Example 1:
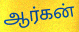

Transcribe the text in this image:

ஆர்கன்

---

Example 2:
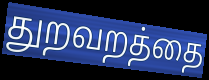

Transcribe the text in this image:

துறவறத்தை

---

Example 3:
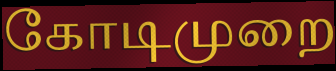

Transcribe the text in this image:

கோடிமுறை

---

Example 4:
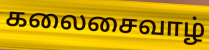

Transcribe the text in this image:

கலைசைவாழ்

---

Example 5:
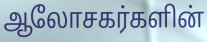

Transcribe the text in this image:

ஆலோசகர்களின்